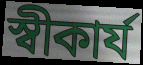
স্বীকার্য